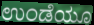
ಉಂಡೆಯೂ